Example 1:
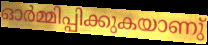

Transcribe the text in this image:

ഓർമ്മിപ്പിക്കുകയാണു്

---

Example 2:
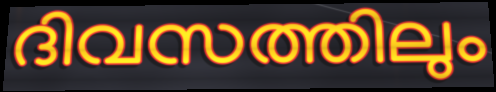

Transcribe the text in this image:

ദിവസത്തിലും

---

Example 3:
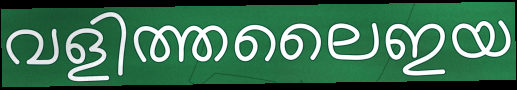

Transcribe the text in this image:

വളിത്തലൈഇയ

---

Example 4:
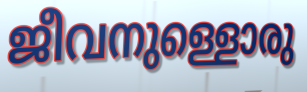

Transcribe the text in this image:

ജീവനുള്ളൊരു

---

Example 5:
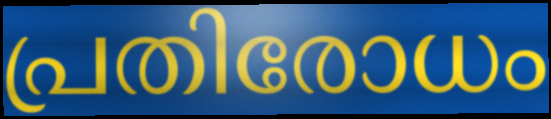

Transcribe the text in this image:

പ്രതിരോധം